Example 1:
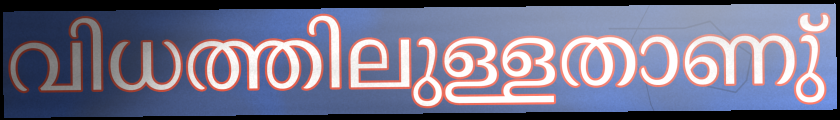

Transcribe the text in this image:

വിധത്തിലുള്ളതാണു്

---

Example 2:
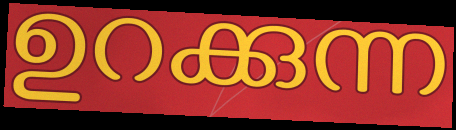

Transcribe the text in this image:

ഉറക്കുന്ന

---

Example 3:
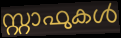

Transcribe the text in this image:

സ്റ്റാഫുകൾ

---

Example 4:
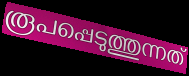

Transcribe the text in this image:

രൂപപ്പെടുത്തുന്നത്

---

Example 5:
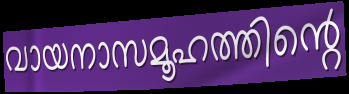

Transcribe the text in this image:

വായനാസമൂഹത്തിന്റെ